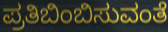
ಪ್ರತಿಬಿಂಬಿಸುವಂತೆ